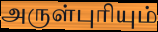
அருள்புரியும்